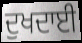
ਦੁਖਦਾਈ